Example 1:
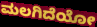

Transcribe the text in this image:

ಮಲಗಿದೆಯೋ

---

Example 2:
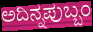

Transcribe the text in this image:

ಅದಿನ್ನಪುಬ್ಬಂ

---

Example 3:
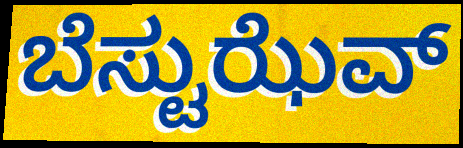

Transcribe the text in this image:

ಬೆಸ್ಟುಝೆವ್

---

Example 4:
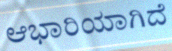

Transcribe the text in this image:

ಆಭಾರಿಯಾಗಿದೆ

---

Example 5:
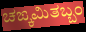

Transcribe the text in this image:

ಚಙ್ಕಮಿತಬ್ಬಂ